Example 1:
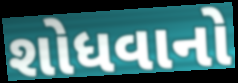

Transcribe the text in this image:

શોધવાનો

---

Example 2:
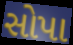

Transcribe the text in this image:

સોપા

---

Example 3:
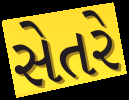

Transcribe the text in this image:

સેતરે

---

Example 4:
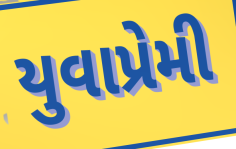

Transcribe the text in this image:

યુવાપ્રેમી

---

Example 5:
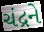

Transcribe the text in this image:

ચંદ્રને